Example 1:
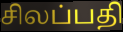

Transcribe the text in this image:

சிலப்பதி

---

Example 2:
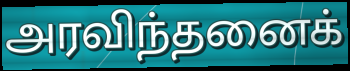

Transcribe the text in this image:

அரவிந்தனைக்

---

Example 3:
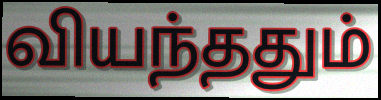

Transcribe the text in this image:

வியந்ததும்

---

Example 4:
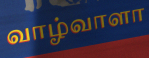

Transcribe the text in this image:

வாழ்வாளா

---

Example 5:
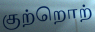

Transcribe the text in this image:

குற்றொற்